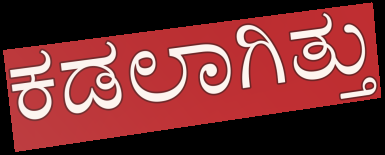
ಕಡಲಾಗಿತ್ತು